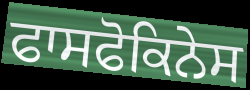
ਫਾਸਫੋਕਿਨੇਸ